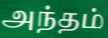
அந்தம்